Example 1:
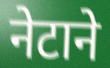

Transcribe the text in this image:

नेटाने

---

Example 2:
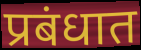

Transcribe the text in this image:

प्रबंधात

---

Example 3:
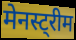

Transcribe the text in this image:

मेनस्ट्रीम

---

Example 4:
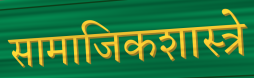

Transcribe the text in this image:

सामाजिकशास्त्रे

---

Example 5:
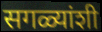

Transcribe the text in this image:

सगळ्यांशी